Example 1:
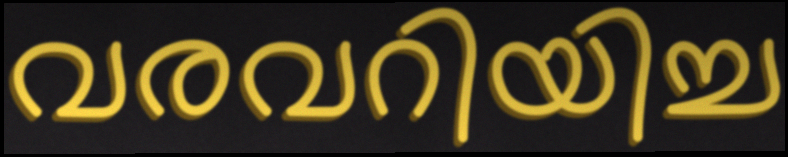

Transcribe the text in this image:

വരവറിയിച്ച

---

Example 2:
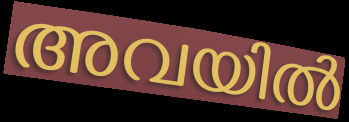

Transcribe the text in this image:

അവയിൽ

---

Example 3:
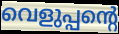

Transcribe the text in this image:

വെളുപ്പന്റെ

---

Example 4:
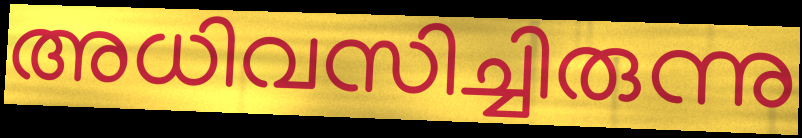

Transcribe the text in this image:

അധിവസിച്ചിരുന്നു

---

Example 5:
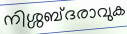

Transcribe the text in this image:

നിശ്ശബ്ദരാവുക